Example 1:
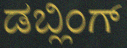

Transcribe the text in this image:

ಡಬ್ಲಿಂಗ್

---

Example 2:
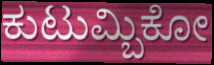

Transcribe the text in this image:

ಕುಟುಮ್ಬಿಕೋ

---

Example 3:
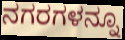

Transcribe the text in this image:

ನಗರಗಳನ್ನೂ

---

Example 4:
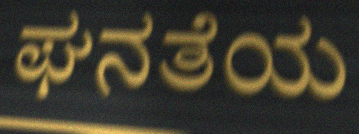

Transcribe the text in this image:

ಘನತೆಯ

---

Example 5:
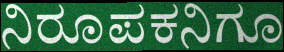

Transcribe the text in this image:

ನಿರೂಪಕನಿಗೂ